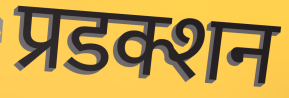
प्रडक्शन